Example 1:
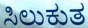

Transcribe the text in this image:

ಸಿಲುಕುತ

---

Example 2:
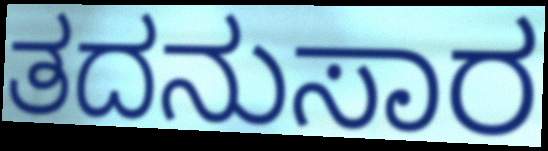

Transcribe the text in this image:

ತದನುಸಾರ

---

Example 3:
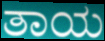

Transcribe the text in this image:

ತಾಯ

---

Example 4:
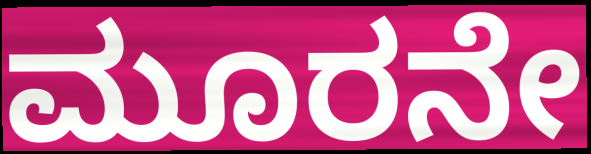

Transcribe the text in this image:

ಮೂರನೇ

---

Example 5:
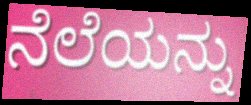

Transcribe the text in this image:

ನೆಲೆಯನ್ನು